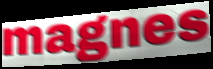
magnes